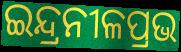
ଇନ୍ଦ୍ରନୀଳପ୍ରଭ